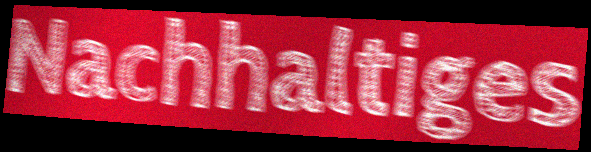
Nachhaltiges